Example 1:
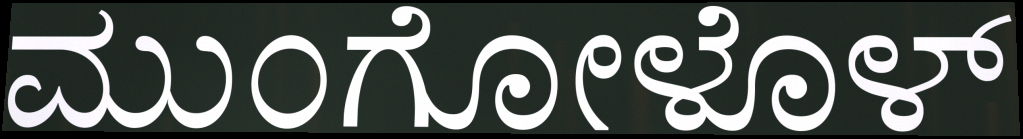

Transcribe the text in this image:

ಮುಂಗೋಳೊಳ್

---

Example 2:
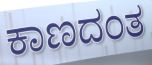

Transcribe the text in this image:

ಕಾಣದಂತ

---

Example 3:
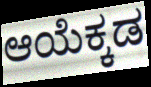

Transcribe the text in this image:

ಆಯೆಕ್ಕಡ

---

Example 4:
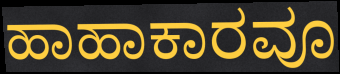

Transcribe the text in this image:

ಹಾಹಾಕಾರವೂ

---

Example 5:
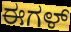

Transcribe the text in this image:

ಈಗಳ್